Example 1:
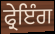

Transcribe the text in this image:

ਫ੍ਰੇਇੰਗ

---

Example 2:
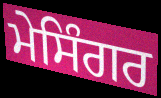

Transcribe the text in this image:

ਮੇਸਿੰਗਰ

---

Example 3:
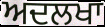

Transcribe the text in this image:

ਅਦਲਖਾ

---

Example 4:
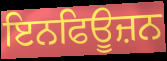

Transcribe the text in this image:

ਇਨਫਿਊਜ਼ਨ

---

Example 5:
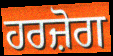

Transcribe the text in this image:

ਹਰਜ਼ੋਗ